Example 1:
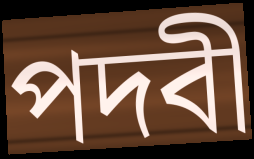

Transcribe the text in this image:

পদবী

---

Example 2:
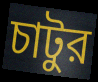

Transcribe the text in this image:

চাটুর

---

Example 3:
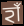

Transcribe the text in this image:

হাঁ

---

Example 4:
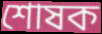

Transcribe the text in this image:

শোষক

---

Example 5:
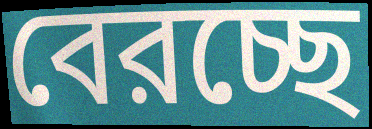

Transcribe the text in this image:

বেরচ্ছে